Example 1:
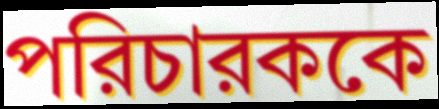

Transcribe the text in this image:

পরিচারককে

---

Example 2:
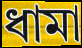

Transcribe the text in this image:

ধামা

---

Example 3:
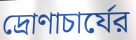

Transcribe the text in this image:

দ্রোণাচার্যের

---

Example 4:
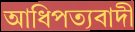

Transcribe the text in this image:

আধিপত্যবাদী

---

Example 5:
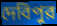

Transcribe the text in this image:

দেবিপুর